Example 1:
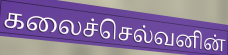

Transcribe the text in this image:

கலைச்செல்வனின்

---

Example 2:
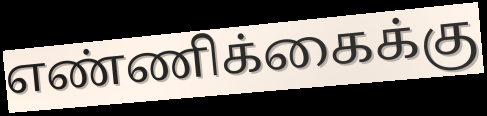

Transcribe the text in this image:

எண்ணிக்கைக்கு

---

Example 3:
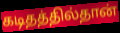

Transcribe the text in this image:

கடிதத்தில்தான்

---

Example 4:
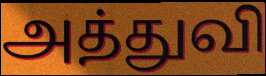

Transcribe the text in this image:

அத்துவி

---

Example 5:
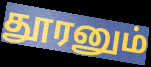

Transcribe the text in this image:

தூரனும்